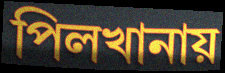
পিলখানায়